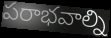
పరాభవాల్ని